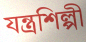
যন্ত্রশিল্পী